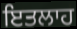
ਇਤਲਾਹ